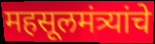
महसूलमंत्र्यांचे